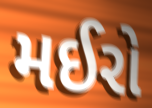
મઈરો